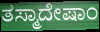
ತಸ್ಮಾದೇಷಾಂ